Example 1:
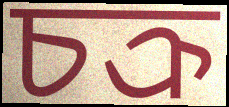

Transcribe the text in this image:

চক্র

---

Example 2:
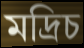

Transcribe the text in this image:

মদ্রিচ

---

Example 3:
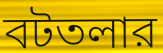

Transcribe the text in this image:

বটতলার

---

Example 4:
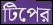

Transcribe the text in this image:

টিপের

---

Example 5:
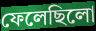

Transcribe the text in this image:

ফেলেছিলো